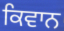
ਕਿਵਾਨ